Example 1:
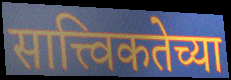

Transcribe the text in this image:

सात्त्विकतेच्या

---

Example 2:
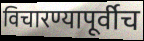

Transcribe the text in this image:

विचारण्यापूर्वीच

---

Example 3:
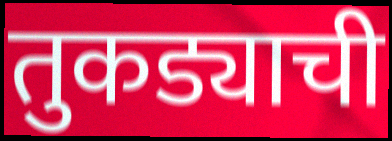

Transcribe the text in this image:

तुकड्याची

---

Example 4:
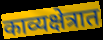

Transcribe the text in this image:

काव्यक्षेत्रात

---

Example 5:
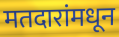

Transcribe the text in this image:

मतदारांमधून